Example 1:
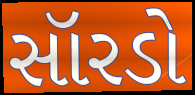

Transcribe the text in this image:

સૉરડો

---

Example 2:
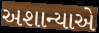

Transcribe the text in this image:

અશાન્યાએ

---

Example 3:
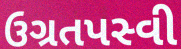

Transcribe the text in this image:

ઉગ્રતપસ્વી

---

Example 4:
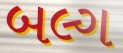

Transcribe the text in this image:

બલ્ગ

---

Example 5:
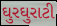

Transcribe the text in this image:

ઘુરઘુરાટી